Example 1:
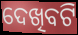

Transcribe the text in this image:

ଦେଖିବଟି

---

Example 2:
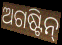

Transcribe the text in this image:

ଅଗଷ୍ଟିନ୍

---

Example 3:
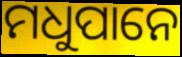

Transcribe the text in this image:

ମଧୁପାନେ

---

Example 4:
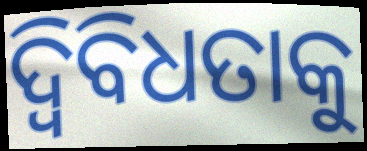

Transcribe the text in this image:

ଦ୍ୱିବିଧତାକୁ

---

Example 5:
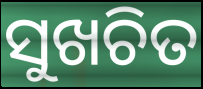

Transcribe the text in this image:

ସୁଖଚିତ